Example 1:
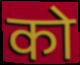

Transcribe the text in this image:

को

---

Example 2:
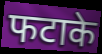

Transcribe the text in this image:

फटाके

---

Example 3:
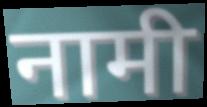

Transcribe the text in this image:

नामी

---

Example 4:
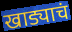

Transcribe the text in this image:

खाड्याचं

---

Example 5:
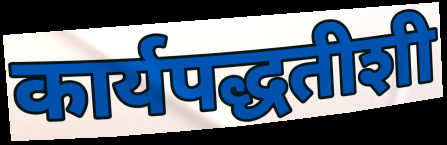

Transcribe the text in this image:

कार्यपद्धतीशी